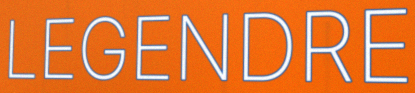
LEGENDRE